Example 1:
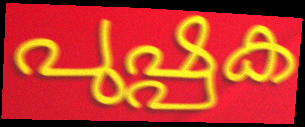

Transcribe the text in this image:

പുഷ്പക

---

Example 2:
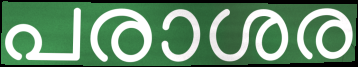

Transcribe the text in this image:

പരാശര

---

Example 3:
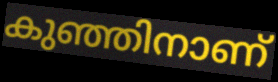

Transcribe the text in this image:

കുഞ്ഞിനാണ്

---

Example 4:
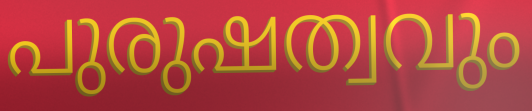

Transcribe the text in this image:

പുരുഷത്വവും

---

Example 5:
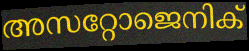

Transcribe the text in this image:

അസറ്റോജെനിക്